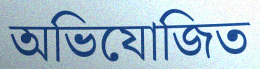
অভিযোজিত